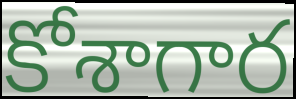
కోశాగార